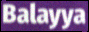
Balayya